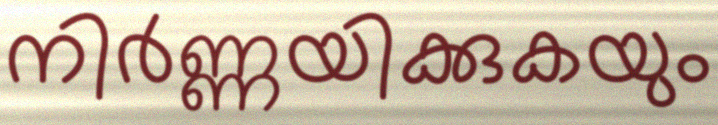
നിർണ്ണയിക്കുകയും